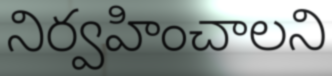
నిర్వహించాలని